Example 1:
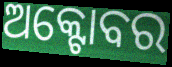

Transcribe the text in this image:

ଅକ୍ଟୋବର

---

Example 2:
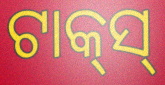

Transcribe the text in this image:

ଟାକ୍‍ସ୍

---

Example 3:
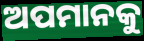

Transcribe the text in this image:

ଅପମାନକୁ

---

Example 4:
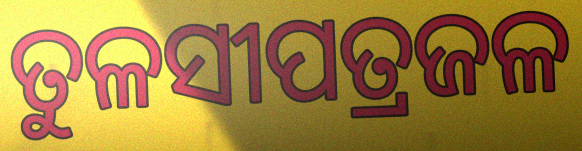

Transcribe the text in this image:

ତୁଳସୀପତ୍ରଜଳ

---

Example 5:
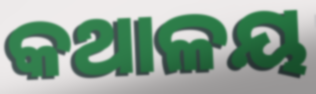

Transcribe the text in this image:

କଥାଳୟ